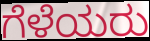
ಗೆಳೆಯರು